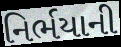
નિર્ભયાની